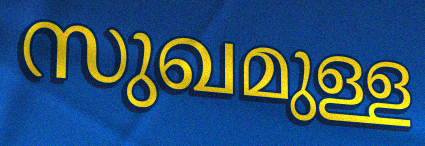
സുഖമുള്ള